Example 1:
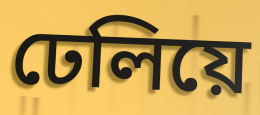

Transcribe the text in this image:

ঢেলিয়ে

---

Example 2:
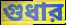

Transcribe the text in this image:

গুধার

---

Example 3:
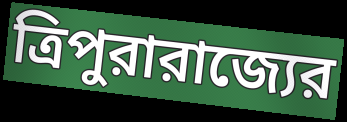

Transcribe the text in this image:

ত্রিপুরারাজ্যের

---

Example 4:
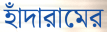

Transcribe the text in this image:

হাঁদারামের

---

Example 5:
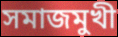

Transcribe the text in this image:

সমাজমুখী